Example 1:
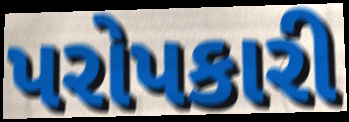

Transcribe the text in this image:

પરોપકારી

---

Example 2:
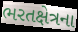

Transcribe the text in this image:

ભરતક્ષેત્રના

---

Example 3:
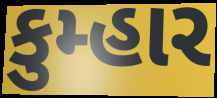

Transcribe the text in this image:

કુમ્હાર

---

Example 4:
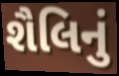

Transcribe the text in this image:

શૈલિનું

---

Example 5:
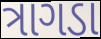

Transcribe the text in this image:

ત્રાગડા